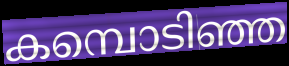
കമ്പൊടിഞ്ഞ